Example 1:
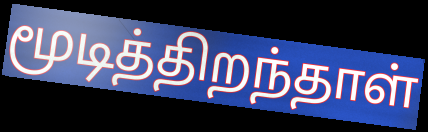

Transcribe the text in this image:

மூடித்திறந்தாள்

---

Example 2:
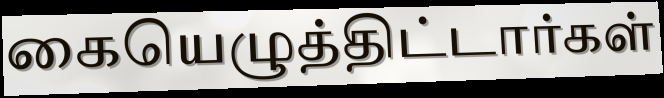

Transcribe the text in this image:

கையெழுத்திட்டார்கள்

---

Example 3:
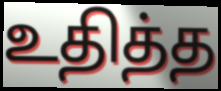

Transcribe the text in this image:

உதித்த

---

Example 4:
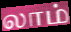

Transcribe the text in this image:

லாம்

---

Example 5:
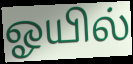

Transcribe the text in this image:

ஓயில்